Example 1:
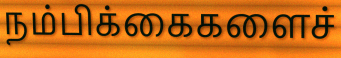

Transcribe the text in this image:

நம்பிக்கைகளைச்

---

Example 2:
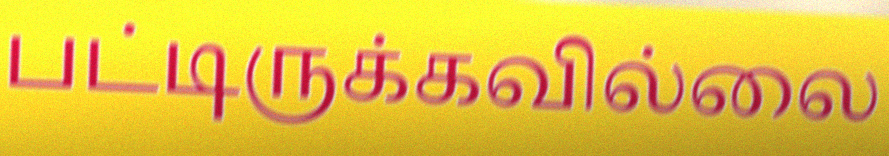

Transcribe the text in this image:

பட்டிருக்கவில்லை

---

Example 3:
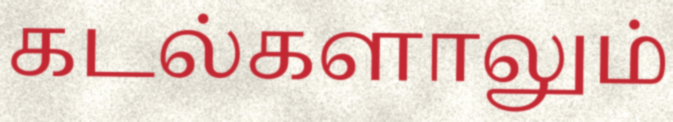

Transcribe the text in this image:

கடல்களாலும்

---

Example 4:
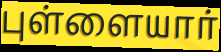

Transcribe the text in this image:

புள்ளையார்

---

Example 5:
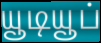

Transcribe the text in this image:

யூடியூப்